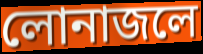
লোনাজলে